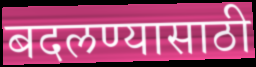
बदलण्यासाठी